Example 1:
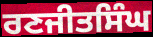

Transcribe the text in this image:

ਰਣਜੀਤਸਿੰਘ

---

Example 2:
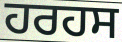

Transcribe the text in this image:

ਹਰਹਸ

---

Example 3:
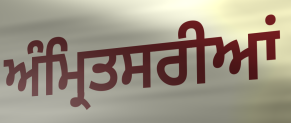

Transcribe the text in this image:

ਅੰਮ੍ਰਿਤਸਰੀਆਂ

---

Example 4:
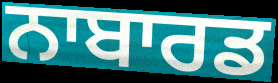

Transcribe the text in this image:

ਨਾਬਾਰਡ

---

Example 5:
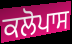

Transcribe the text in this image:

ਕਲੋਪਾਸ